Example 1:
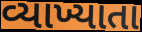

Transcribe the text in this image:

વ્યાખ્યાતા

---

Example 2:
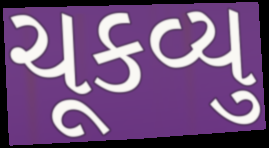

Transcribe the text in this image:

ચૂકવ્યુ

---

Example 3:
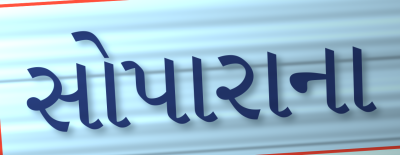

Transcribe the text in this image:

સોપારાના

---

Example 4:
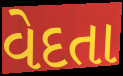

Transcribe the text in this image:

વેદતા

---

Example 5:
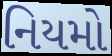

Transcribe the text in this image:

નિયમો